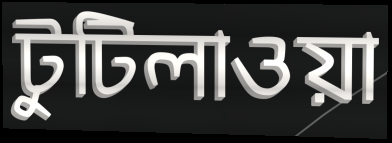
টুটিলাওয়া